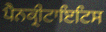
ਪੈਨਕ੍ਰੀਟਾਇਟਿਸ